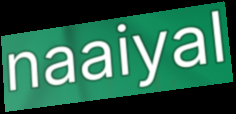
naaiyal